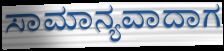
ಸಾಮಾನ್ಯವಾದಾಗ